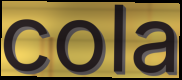
cola